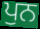
ਪੁਨ